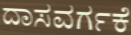
ದಾಸವರ್ಗಕೆ